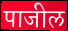
पाजील